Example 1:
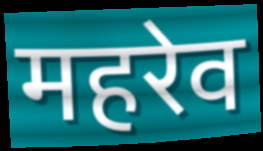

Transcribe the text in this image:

महरेव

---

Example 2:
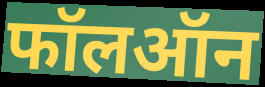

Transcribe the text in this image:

फॉलऑन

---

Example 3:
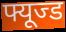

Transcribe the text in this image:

फ्यूज्ड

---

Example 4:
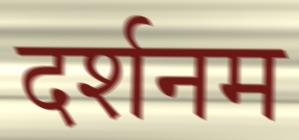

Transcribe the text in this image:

दर्शनम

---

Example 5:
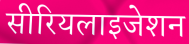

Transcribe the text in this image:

सीरियलाइजेशन